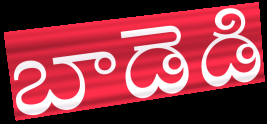
బాడెడి